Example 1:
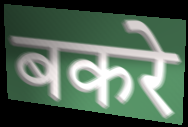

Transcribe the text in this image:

बकरे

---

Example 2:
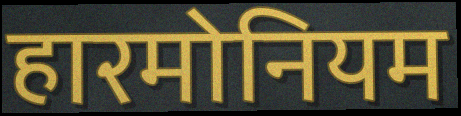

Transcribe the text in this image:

हारमोनियम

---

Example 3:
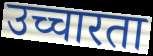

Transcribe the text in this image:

उच्चारता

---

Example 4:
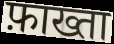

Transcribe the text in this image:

फ़ाख्ता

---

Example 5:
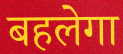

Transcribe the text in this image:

बहलेगा